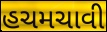
હચમચાવી